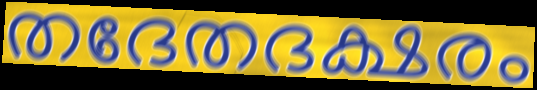
തദേതദക്ഷരം